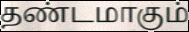
தண்டமாகும்